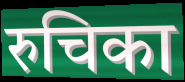
रुचिका